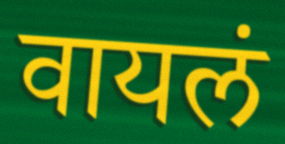
वायलं